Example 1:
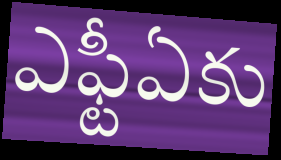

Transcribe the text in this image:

ఎఫ్టీఏకు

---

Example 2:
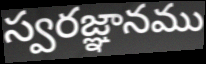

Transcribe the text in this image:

స్వరజ్ఞానము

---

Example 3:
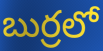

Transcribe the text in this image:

బుర్రలో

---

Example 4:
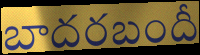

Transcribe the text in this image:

బాదరబందీ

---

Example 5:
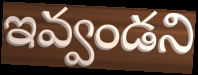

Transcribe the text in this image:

ఇవ్వండని